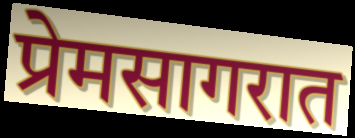
प्रेमसागरात